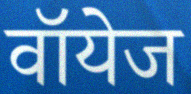
वॉयेज